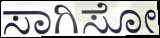
ಸಾಗಿಸೋ